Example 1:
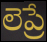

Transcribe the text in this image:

లెప్రే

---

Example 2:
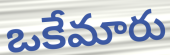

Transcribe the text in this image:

ఒకేమారు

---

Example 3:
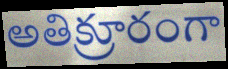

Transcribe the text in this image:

అతిక్రూరంగా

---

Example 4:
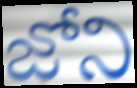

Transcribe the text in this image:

జోని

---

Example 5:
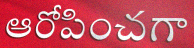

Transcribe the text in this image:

ఆరోపించగా